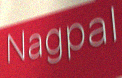
Nagpal